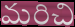
మరిచి